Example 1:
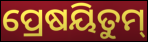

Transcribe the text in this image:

ପ୍ରେଷୟିତୁମ୍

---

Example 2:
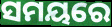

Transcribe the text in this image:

ସମୟରେ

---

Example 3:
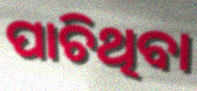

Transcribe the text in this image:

ପାଚିଥିବା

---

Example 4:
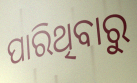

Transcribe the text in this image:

ପାରିଥିବାରୁ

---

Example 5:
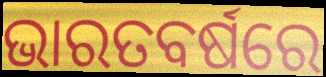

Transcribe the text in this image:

ଭାରତବର୍ଷରେ